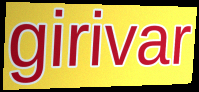
girivar